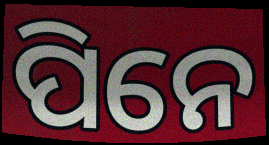
ପିନେ